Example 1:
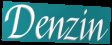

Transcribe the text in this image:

Denzin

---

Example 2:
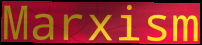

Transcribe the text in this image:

Marxism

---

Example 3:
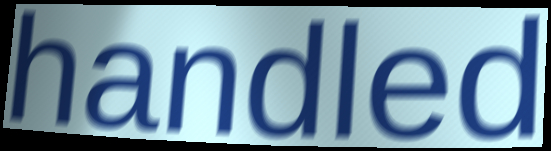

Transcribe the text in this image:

handled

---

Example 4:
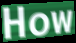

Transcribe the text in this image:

How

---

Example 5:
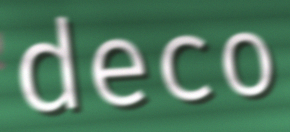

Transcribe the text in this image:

deco